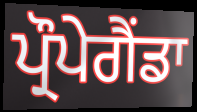
ਪ੍ਰੌਪੇਗੈਂਡਾ